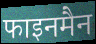
फाइनमैन